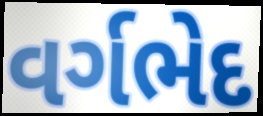
વર્ગભેદ